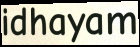
idhayam